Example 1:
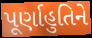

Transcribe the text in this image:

પૂર્ણાહુતિને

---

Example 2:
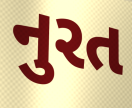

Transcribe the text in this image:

નુરત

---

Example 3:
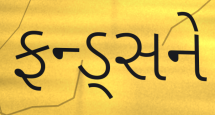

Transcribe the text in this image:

ફન્ડ્સને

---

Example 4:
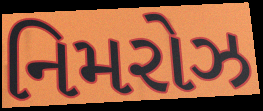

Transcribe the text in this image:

નિમરોઝ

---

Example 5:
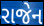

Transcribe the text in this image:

રાજેન